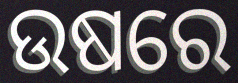
ଉଷରେ